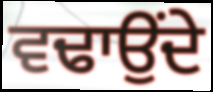
ਵਢਾਉਂਦੇ